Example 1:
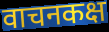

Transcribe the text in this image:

वाचनकक्ष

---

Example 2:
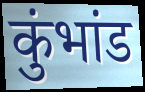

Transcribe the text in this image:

कुंभांड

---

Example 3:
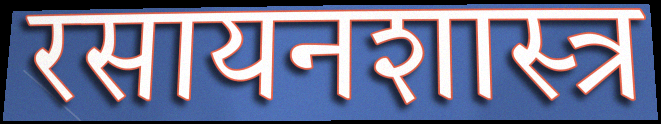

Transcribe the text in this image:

रसायनशास्त्र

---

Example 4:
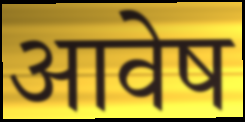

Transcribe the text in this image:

आवेष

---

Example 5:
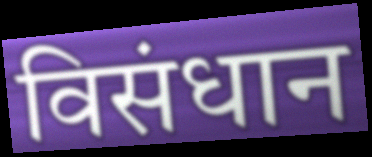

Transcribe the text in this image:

विसंधान